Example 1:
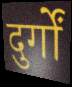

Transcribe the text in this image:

दुर्गों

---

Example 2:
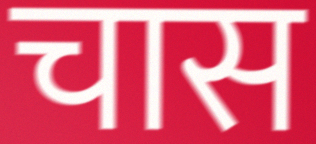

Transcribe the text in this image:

चास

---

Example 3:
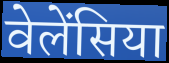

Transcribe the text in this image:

वेलेंसिया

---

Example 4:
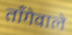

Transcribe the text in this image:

ताँगेवाले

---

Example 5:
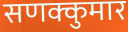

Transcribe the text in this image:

सणक्कुमार